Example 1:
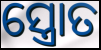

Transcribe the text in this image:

ସ୍ତ୍ରୋତ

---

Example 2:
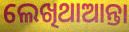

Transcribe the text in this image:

ଲେଖିଥାଆନ୍ତା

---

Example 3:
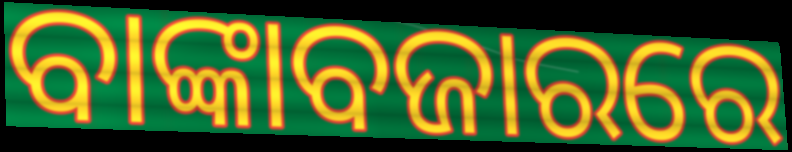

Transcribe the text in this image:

ବାଙ୍କାବଜାରରେ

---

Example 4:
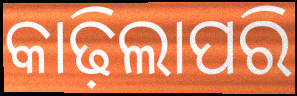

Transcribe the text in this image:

କାଢ଼ିଲାପରି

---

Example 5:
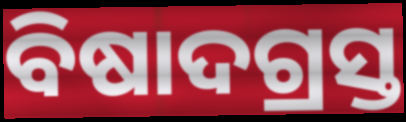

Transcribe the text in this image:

ବିଷାଦଗ୍ରସ୍ତ